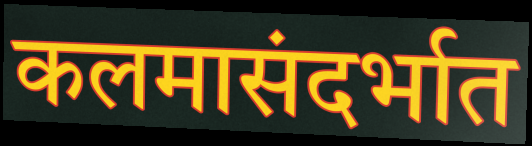
कलमासंदर्भात